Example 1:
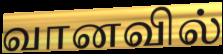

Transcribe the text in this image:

வானவில்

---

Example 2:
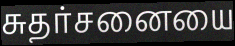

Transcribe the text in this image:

சுதர்சனையை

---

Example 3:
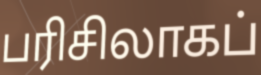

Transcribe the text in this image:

பரிசிலாகப்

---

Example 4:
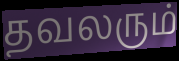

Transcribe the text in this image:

தவலரும்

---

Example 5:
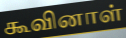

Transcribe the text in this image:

கூவினாள்